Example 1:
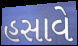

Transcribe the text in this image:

હસાવે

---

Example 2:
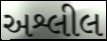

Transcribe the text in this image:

અશ્લીલ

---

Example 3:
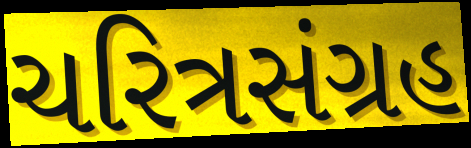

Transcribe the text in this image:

ચરિત્રસંગ્રહ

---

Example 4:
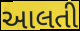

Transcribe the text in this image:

આલતી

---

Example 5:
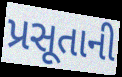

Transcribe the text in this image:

પ્રસૂતાની